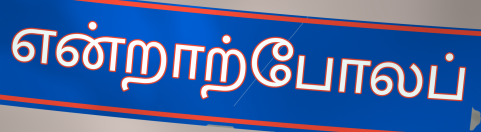
என்றாற்போலப்